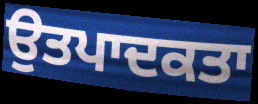
ਉਤਪਾਦਕਤਾ